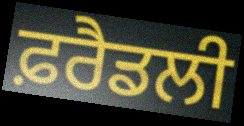
ਫ਼ਰੈਡਲੀ